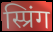
स्प्रिंग